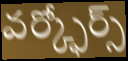
వర్క్ఫోర్స్